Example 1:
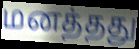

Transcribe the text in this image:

மனத்தது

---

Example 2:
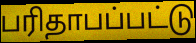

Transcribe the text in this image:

பரிதாபப்பட்டு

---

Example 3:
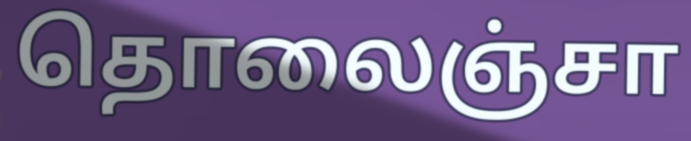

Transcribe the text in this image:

தொலைஞ்சா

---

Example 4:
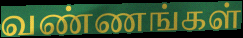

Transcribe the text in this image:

வண்ணங்கள்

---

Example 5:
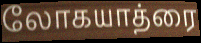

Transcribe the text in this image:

லோகயாத்ரை